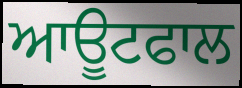
ਆਊਟਫਾਲ